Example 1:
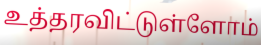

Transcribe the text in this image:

உத்தரவிட்டுள்ளோம்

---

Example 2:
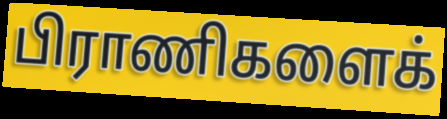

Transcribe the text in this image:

பிராணிகளைக்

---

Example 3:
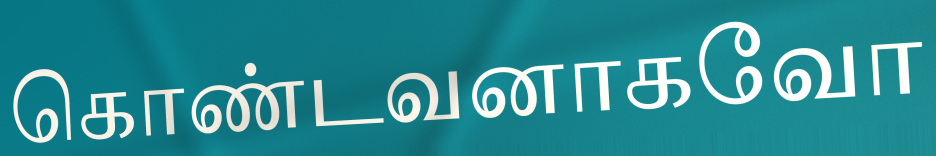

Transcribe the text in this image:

கொண்டவனாகவோ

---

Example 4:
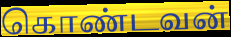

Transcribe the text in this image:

கொண்டவன்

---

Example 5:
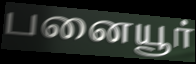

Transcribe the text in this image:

பனையூர்